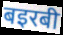
बइरबी